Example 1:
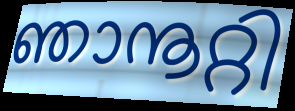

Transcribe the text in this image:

ഞാനൂറ്റി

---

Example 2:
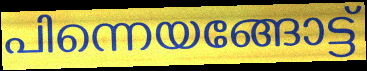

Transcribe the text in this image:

പിന്നെയങ്ങോട്ട്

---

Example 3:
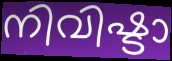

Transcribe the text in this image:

നിവിഷ്ടാ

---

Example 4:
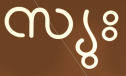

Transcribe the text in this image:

സ്യുഃ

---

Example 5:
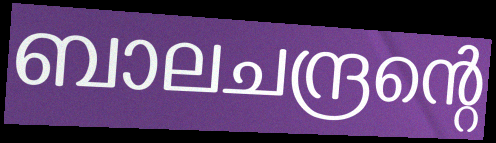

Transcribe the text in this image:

ബാലചന്ദ്രന്റെ